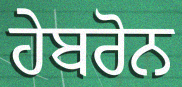
ਹੇਬਰੋਨ